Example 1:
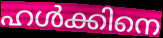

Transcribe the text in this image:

ഹൾക്കിനെ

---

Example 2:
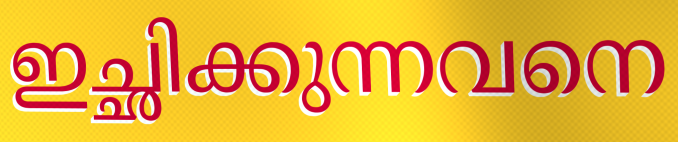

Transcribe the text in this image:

ഇച്ഛിക്കുന്നവനെ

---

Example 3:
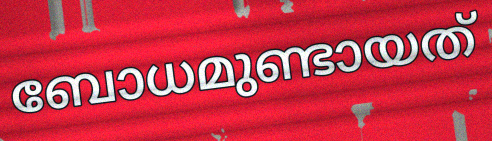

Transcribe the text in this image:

ബോധമുണ്ടായത്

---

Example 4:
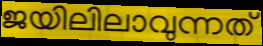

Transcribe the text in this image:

ജയിലിലാവുന്നത്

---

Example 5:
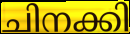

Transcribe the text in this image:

ചിനക്കി